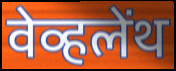
वेव्हलेंथ